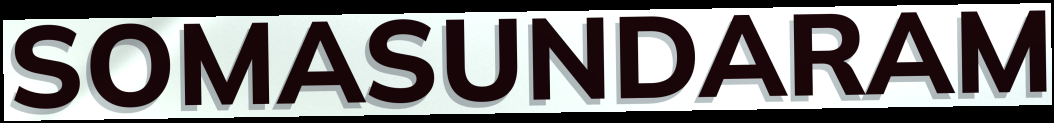
SOMASUNDARAM